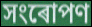
সংৰোপণ